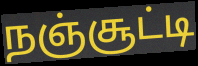
நஞ்சூட்டி